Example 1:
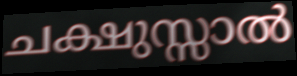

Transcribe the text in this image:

ചക്ഷുസ്സാൽ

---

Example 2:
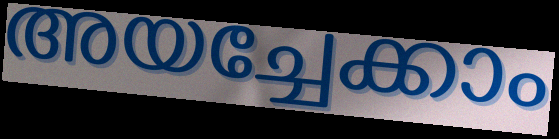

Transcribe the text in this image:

അയച്ചേക്കാം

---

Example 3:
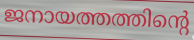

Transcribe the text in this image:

ജനായത്തത്തിന്റെ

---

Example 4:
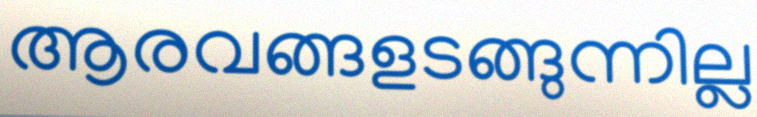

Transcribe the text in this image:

ആരവങ്ങളടങ്ങുന്നില്ല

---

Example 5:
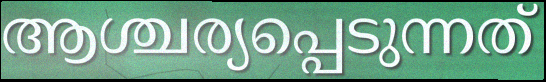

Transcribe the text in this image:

ആശ്ചര്യപ്പെടുന്നത്